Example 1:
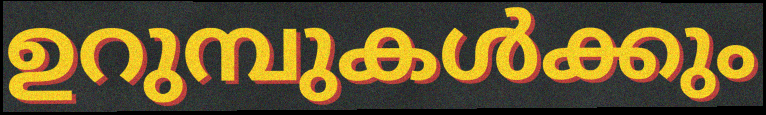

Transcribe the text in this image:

ഉറുമ്പുകൾക്കും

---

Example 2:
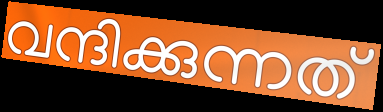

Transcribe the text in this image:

വന്ദിക്കുന്നത്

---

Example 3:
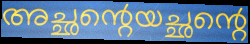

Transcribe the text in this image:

അച്ഛന്റെയച്ഛന്റെ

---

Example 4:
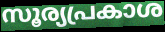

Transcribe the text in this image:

സൂര്യപ്രകാശ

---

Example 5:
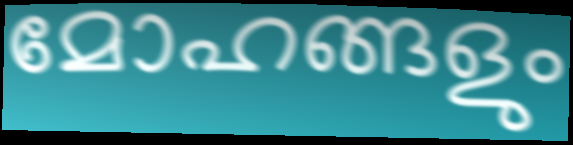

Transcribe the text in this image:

മോഹങ്ങളും